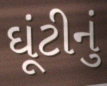
ઘૂંટીનું